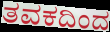
ತವಕದಿಂದ